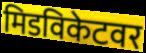
मिडविकेटवर